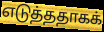
எடுத்ததாகக்